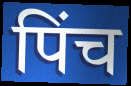
पिंच